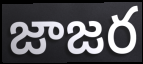
జాజర